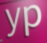
yp